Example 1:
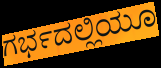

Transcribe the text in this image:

ಗರ್ಭದಲ್ಲಿಯೂ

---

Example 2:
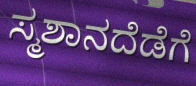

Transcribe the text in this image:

ಸ್ಮಶಾನದೆಡೆಗೆ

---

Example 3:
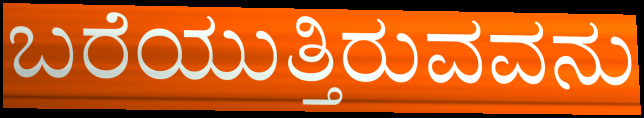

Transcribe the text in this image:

ಬರೆಯುತ್ತಿರುವವನು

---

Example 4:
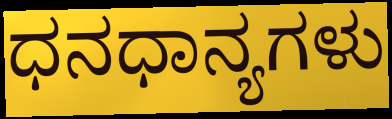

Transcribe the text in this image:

ಧನಧಾನ್ಯಗಳು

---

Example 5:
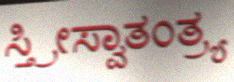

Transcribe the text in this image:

ಸ್ತ್ರೀಸ್ವಾತಂತ್ರ್ಯ